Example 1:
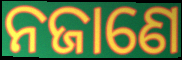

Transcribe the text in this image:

ନଜାଣେ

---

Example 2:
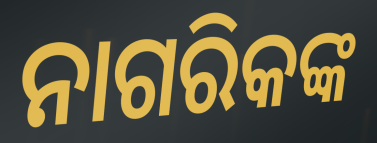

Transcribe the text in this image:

ନାଗରିକଙ୍କ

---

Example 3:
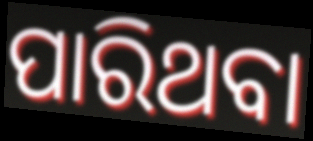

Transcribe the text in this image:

ପାରିଥବା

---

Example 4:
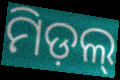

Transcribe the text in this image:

ମିଡ଼ଲ୍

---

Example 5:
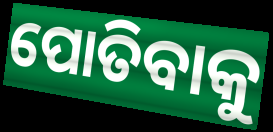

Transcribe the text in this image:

ପୋତିବାକୁ